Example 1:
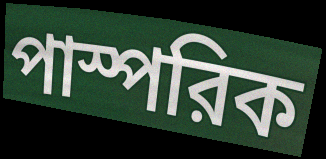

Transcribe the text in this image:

পাস্পরিক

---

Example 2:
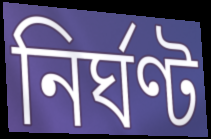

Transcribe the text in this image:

নির্ঘণ্ট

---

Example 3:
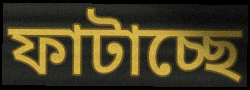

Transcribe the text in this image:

ফাটাচ্ছে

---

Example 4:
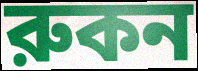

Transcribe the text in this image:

রুকন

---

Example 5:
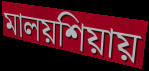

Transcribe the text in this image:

মালয়শিয়ায়